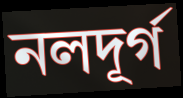
নলদূর্গ